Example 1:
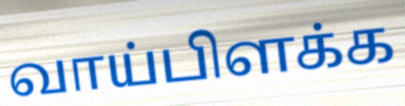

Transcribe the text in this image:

வாய்பிளக்க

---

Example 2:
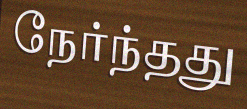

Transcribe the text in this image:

நேர்ந்தது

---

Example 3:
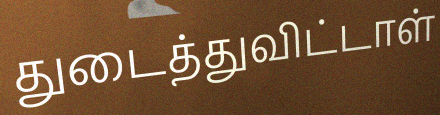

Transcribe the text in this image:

துடைத்துவிட்டாள்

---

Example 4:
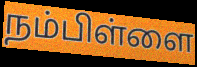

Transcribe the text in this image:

நம்பிள்ளை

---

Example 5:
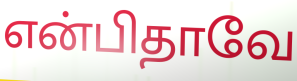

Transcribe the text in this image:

என்பிதாவே